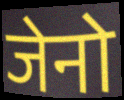
जेनो